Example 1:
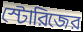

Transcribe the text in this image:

স্টোরিজের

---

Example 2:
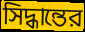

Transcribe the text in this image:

সিদ্ধান্তের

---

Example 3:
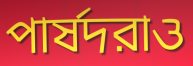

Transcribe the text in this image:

পার্ষদরাও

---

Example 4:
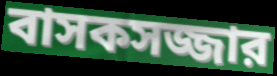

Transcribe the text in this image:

বাসকসজ্জার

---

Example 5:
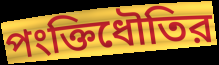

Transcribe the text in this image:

পংক্তিধৌতির